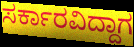
ಸರ್ಕಾರವಿದ್ದಾಗ